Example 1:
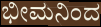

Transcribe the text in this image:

ಭೀಮನಿಂದ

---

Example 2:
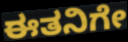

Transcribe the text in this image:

ಈತನಿಗೇ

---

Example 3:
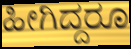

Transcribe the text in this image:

ಹೀಗಿದ್ದರೂ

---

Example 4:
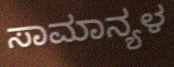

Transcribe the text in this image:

ಸಾಮಾನ್ಯಳ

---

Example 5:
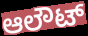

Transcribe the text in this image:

ಆಲೌಟ್